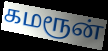
கமரூன்